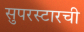
सुपरस्टारची